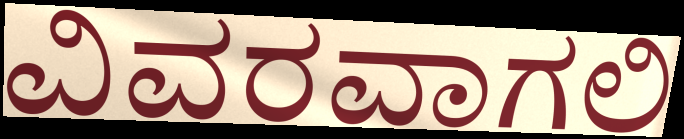
ವಿವರವಾಗಲಿ